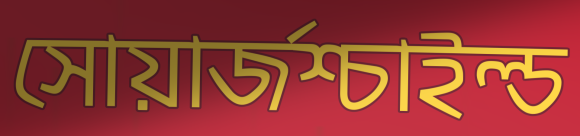
সোয়ার্জশ্চাইল্ড